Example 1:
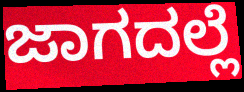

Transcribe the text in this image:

ಜಾಗದಲ್ಲೆ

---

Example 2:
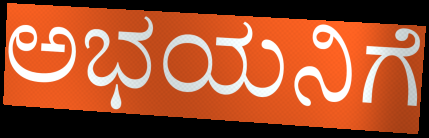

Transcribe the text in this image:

ಅಭಯನಿಗೆ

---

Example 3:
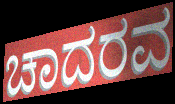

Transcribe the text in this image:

ಚಾದರವ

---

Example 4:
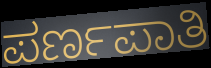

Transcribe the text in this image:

ಪರ್ಣಪಾತಿ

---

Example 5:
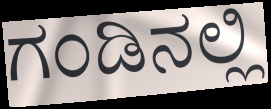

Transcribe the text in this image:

ಗಂಡಿನಲ್ಲಿ